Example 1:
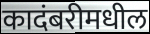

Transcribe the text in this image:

कादंबरीमधील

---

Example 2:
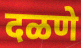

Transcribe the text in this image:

दळणे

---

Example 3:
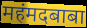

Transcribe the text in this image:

महंमदबाबा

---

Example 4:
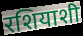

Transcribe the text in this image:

रशियाशी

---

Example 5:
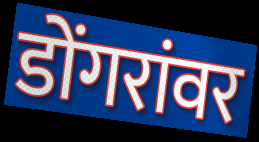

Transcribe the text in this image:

डोंगरांवर